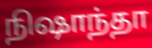
நிஷாந்தா